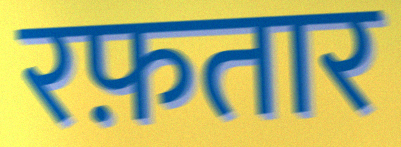
रफ़तार